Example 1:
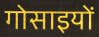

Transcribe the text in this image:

गोसाइयों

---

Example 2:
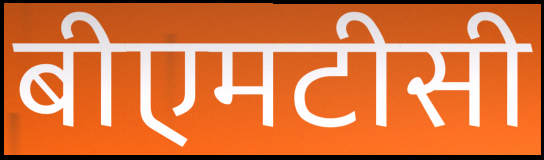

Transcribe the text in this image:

बीएमटीसी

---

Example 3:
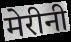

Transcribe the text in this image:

मेरीनी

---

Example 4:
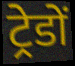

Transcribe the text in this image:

ट्रेडों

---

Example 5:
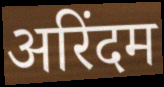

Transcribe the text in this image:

अरिंदम